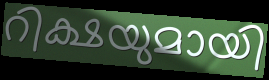
റിക്ഷയുമായി